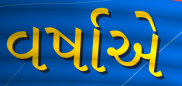
વર્ષાએ